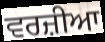
ਵਰਜ਼ੀਆ